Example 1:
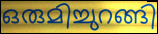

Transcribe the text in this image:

ഒരുമിച്ചുറങ്ങി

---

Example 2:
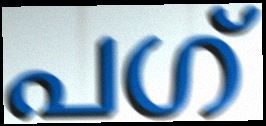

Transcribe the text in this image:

പഗ്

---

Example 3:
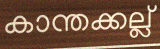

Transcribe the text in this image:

കാന്തക്കല്ല്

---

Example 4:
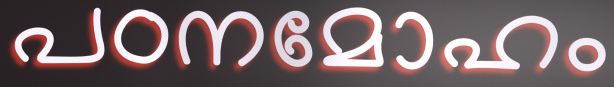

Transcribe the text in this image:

പഠനമോഹം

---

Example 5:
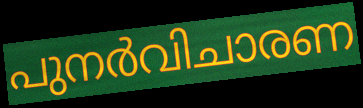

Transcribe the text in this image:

പുനർവിചാരണ